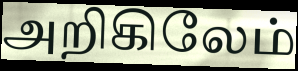
அறிகிலேம்